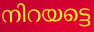
നിറയട്ടെ